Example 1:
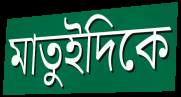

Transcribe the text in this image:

মাতুইদিকে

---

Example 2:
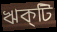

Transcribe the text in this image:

ঋক্‌টি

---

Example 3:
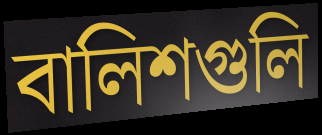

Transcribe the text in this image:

বালিশগুলি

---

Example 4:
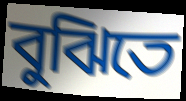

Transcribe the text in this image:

বুঝিতে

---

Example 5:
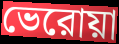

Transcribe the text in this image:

ভেরোয়া